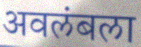
अवलंबला